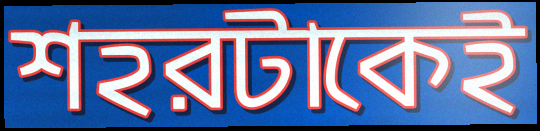
শহরটাকেই